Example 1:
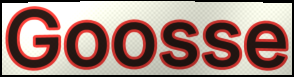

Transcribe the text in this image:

Goosse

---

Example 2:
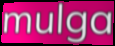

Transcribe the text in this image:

mulga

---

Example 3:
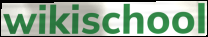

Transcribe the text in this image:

wikischool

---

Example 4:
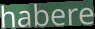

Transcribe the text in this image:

habere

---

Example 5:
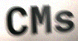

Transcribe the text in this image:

CMs